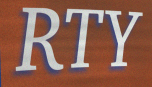
RTY